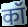
कॉ